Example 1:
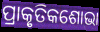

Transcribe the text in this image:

ପ୍ରାକୃତିକଶୋଭା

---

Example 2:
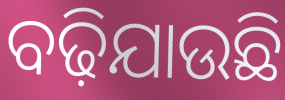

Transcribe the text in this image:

ବଢ଼ିଯାଉଛି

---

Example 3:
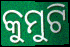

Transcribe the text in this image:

କୁମୁଟି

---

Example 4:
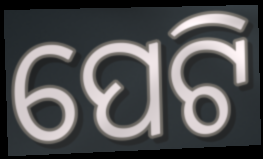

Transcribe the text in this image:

ପେଟି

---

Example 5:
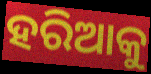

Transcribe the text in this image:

ହରିଆକୁ